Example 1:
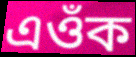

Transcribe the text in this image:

এওঁক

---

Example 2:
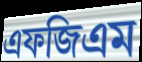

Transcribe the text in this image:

এফজিএম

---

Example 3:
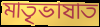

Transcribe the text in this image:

মাতৃভাষাত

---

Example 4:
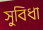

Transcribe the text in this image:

সুবিধা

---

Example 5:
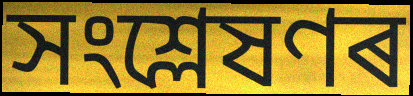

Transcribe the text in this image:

সংশ্লেষণৰ